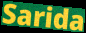
Sarida